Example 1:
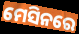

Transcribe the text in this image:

ମେସିନରେ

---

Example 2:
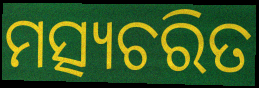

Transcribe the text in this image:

ମତ୍ସ୍ୟଚରିତ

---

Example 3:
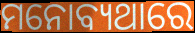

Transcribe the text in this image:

ମନୋବ୍ୟଥାରେ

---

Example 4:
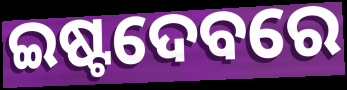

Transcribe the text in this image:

ଇଷ୍ଟଦେବରେ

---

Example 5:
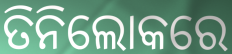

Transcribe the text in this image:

ତିନିଲୋକରେ